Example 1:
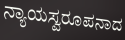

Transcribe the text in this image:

ನ್ಯಾಯಸ್ವರೂಪನಾದ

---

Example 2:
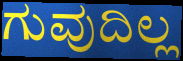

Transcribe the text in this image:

ಗುವುದಿಲ್ಲ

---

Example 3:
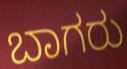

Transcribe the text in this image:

ಬಾಗರು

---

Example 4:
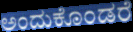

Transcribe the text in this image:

ಅಂದುಕೊಂಡರೆ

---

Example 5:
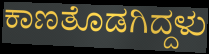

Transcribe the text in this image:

ಕಾಣತೊಡಗಿದ್ದಳು